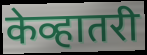
केव्हातरी